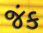
જંક